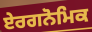
ਏਰਗਨੋਮਿਕ